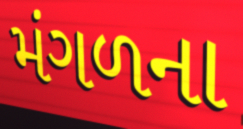
મંગળના